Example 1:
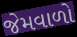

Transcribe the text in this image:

જેમવાળો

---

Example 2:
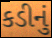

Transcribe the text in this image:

કડીનું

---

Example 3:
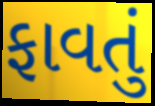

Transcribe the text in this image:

ફાવતું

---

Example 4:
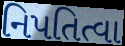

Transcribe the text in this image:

નિપતિત્વા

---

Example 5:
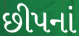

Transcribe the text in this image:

છીપનાં